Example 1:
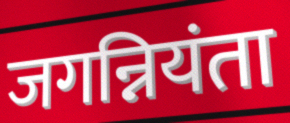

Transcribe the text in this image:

जगन्नियंता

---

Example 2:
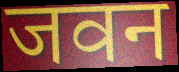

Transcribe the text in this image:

जवन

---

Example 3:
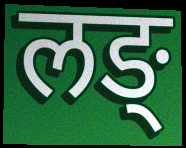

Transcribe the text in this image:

लङ्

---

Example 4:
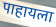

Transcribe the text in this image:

पाहायला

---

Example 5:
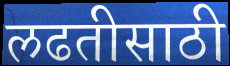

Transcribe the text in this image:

लढतीसाठी